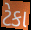
ટેકા